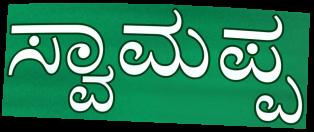
ಸ್ವಾಮಪ್ಪ